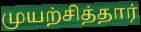
முயற்சித்தார்